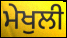
ਮੇਖੁਲੀ